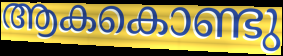
ആകകൊണ്ടു